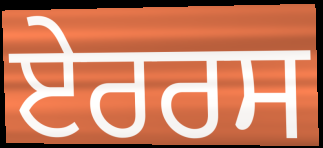
ਏਰਰਸ